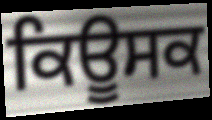
ਕਿਊਸਕ